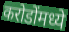
करोडोंमध्ये